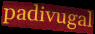
padivugal